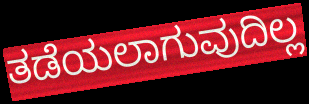
ತಡೆಯಲಾಗುವುದಿಲ್ಲ